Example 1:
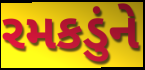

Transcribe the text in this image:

રમકડુંને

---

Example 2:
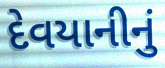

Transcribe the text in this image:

દેવયાનીનું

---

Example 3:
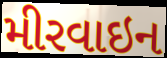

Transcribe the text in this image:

મીરવાઇન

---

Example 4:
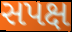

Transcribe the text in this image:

સપક્ષ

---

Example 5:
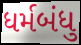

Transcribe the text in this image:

ધર્મબંધુ